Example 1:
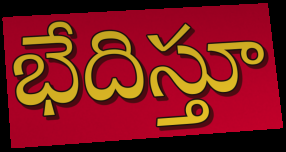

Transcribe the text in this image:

భేదిస్తూ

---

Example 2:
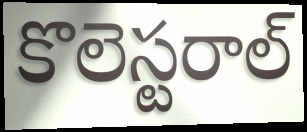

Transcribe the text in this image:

కొలెస్టరాల్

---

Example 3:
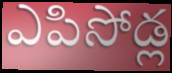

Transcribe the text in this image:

ఎపిసోడ్ల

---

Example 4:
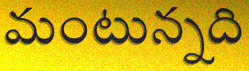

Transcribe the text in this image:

మంటున్నది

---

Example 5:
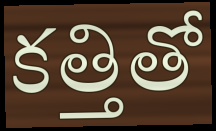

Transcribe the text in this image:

కత్తితో